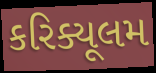
કરિક્યૂલમ